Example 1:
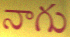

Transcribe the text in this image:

నాగు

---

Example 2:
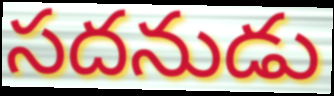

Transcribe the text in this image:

సదనుడు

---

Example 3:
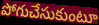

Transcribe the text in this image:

పోగుచేసుకుంటూ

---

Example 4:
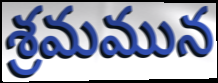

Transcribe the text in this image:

శ్రమమున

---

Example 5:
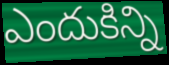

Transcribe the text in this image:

ఎందుకిన్ని